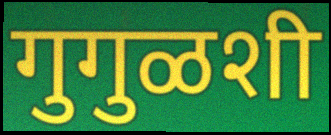
गुगुळशी